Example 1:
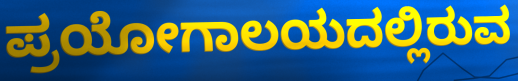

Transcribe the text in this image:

ಪ್ರಯೋಗಾಲಯದಲ್ಲಿರುವ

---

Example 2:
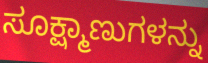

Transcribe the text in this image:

ಸೂಕ್ಷ್ಮಾಣುಗಳನ್ನು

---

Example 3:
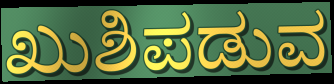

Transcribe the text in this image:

ಖುಶಿಪಡುವ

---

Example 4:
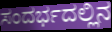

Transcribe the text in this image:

ಸಂದರ್ಭದಲ್ಲಿನ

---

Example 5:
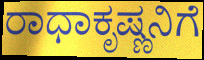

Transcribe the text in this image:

ರಾಧಾಕೃಷ್ಣನಿಗೆ